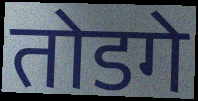
तोडगे